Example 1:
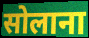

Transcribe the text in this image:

सोलाना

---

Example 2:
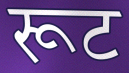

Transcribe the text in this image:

रूट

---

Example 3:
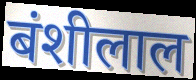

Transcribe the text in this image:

बंशीलाल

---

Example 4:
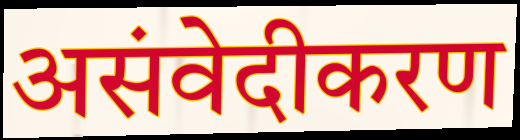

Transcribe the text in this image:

असंवेदीकरण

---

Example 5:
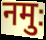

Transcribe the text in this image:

नमुः